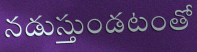
నడుస్తుండటంతో